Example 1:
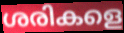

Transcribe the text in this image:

ശരികളെ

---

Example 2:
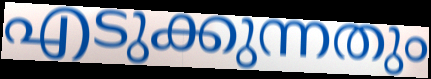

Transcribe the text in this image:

എടുക്കുന്നതും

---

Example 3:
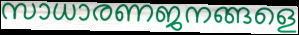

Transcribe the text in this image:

സാധാരണജനങ്ങളെ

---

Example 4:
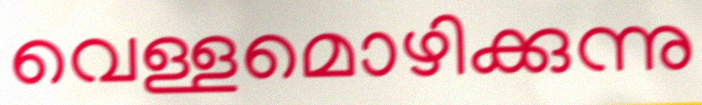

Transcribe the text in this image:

വെള്ളമൊഴിക്കുന്നു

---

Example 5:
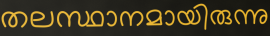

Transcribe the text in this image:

തലസ്ഥാനമായിരുന്നു